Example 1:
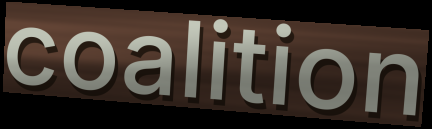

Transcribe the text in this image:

coalition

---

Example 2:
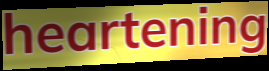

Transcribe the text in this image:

heartening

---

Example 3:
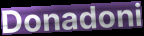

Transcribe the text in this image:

Donadoni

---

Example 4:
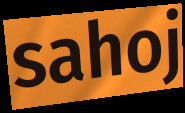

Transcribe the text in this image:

sahoj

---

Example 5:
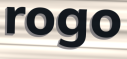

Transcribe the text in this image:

rogo